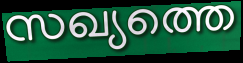
സഖ്യത്തെ